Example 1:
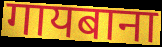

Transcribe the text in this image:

गायबाना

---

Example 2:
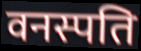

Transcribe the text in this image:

वनस्‍पति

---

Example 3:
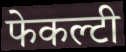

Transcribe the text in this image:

फेकल्टी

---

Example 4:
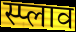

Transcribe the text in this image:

स्प्लाव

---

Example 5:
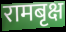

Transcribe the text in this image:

रामबृक्ष